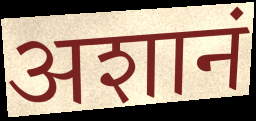
अशानं